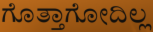
ಗೊತ್ತಾಗೋದಿಲ್ಲ